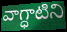
వాగ్ధాటిని